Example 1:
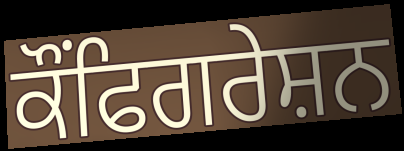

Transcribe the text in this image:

ਕੌਂਫਿਗਰੇਸ਼ਨ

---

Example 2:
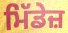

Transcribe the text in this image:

ਮਿੱਡੇਜ਼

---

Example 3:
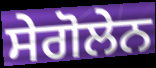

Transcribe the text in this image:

ਸੇਗੋਲੇਨ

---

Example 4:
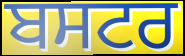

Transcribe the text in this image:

ਬਸਟਰ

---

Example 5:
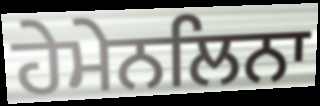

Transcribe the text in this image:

ਹੇਮੇਨਲਿਨਾ